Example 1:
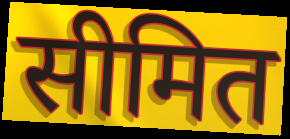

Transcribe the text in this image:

सीमित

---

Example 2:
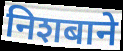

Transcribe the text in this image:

निशबाने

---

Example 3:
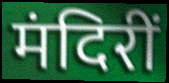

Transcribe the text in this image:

मंदिरीं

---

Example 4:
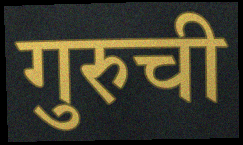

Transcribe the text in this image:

गुरुची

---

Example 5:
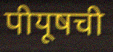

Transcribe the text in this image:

पीयूषची